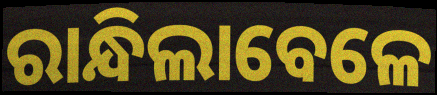
ରାନ୍ଧିଲାବେଳେ